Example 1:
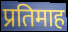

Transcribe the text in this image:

प्रतिमाह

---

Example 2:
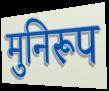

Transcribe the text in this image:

मुनिरूप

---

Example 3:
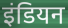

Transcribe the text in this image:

इंडियन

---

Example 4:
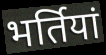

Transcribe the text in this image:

भर्तियां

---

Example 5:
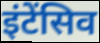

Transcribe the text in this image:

इंटेंसिव